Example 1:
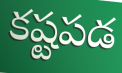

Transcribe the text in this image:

కష్టపడ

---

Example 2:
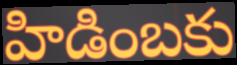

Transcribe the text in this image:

హిడింబకు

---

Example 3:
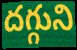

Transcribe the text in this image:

దగ్గుని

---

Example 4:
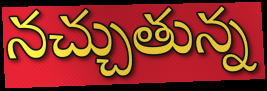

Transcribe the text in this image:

నచ్చుతున్న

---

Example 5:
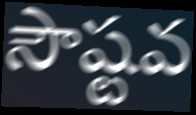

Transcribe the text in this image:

సౌష్టవ